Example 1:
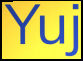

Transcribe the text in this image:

Yuj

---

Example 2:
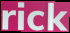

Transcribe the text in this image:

rick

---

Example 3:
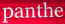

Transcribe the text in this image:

panthe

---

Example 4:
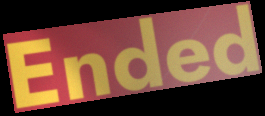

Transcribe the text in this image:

Ended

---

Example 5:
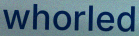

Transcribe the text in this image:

whorled